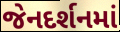
જેનદર્શનમાં